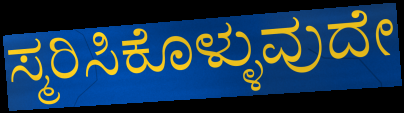
ಸ್ಮರಿಸಿಕೊಳ್ಳುವುದೇ